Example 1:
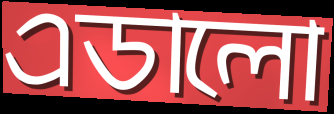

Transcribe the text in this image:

এডালো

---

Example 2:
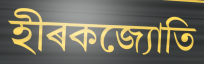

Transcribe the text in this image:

হীৰকজ্যোতি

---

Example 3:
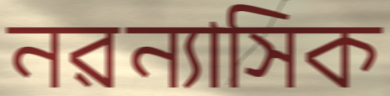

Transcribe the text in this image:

নৱন্যাসিক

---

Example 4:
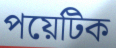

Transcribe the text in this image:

পয়েটিক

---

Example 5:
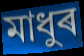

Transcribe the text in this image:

মাধুৰ